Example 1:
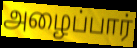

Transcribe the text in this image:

அழைப்பார்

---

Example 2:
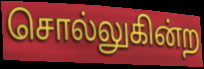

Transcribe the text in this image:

சொல்லுகின்ற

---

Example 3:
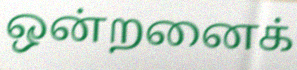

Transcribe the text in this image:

ஒன்றனைக்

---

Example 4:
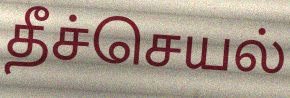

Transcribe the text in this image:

தீச்செயல்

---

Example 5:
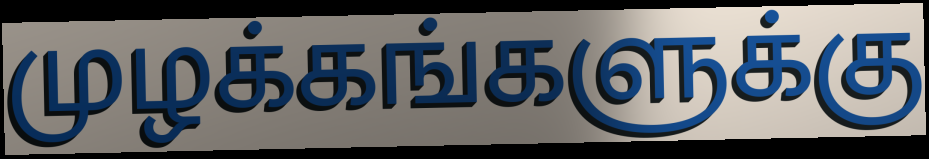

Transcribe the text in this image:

முழக்கங்களுக்கு